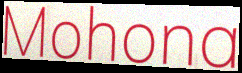
Mohona